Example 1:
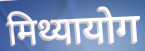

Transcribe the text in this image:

मिथ्यायोग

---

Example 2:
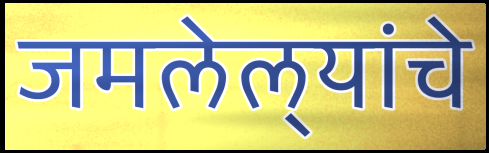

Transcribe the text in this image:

जमलेल्यांचे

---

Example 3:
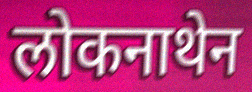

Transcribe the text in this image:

लोकनाथेन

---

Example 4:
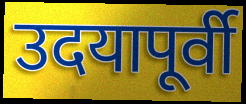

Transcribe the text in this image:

उदयापूर्वी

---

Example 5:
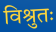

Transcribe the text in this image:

विश्रुतः